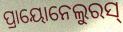
ପ୍ରାୟୋନେଲୁରସ୍